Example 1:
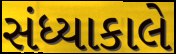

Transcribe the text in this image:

સંધ્યાકાલે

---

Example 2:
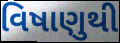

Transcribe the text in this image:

વિષાણુથી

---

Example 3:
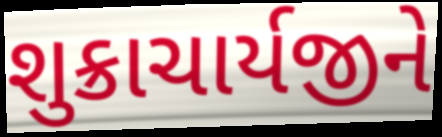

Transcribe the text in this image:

શુક્રાચાર્યજીને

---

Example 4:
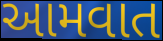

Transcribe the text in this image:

આમવાત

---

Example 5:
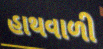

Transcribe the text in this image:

હાથવાળી